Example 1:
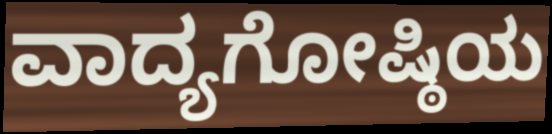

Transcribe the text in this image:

ವಾದ್ಯಗೋಷ್ಠಿಯ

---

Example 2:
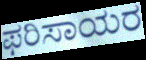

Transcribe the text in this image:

ಫರಿಸಾಯರ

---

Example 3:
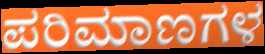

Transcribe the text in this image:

ಪರಿಮಾಣಗಳ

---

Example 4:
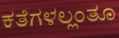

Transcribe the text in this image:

ಕತೆಗಳಲ್ಲಂತೂ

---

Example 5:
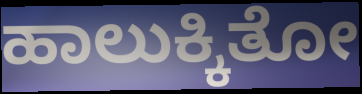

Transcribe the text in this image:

ಹಾಲುಕ್ಕಿತೋ